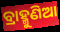
ବ୍ରାହ୍ମୁଣିଆ